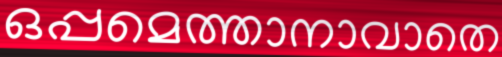
ഒപ്പമെത്താനാവാതെ